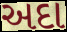
અદા